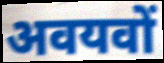
अवयवों